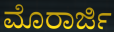
ಮೊರಾರ್ಜಿ